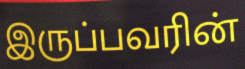
இருப்பவரின்